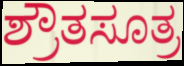
ಶ್ರೌತಸೂತ್ರ